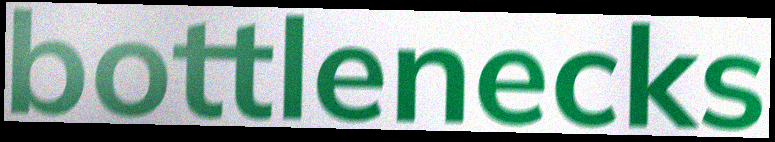
bottlenecks